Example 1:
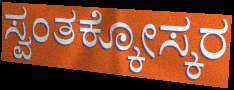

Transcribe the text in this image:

ಸ್ವಂತಕ್ಕೋಸ್ಕರ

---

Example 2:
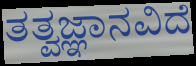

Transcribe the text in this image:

ತತ್ವಜ್ಞಾನವಿದೆ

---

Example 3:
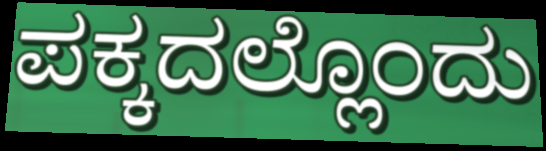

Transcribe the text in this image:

ಪಕ್ಕದಲ್ಲೊಂದು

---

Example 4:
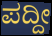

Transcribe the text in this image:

ಪದ್ದೀ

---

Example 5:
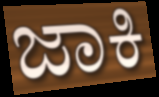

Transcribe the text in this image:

ಜಾಕಿ